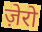
ज़ेरो